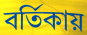
বর্তিকায়